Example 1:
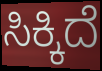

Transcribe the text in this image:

ಸಿಕ್ಕಿದೆ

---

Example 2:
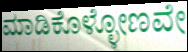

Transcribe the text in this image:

ಮಾಡಿಕೊಳ್ಳೋಣವೇ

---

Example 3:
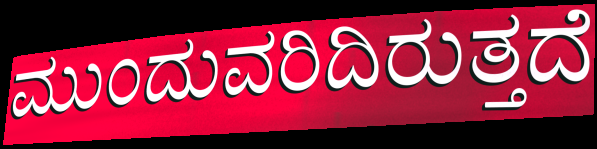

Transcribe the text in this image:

ಮುಂದುವರಿದಿರುತ್ತದೆ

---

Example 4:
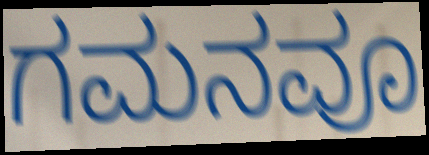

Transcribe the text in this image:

ಗಮನವೂ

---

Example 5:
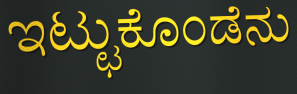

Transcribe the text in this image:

ಇಟ್ಟುಕೊಂಡೆನು